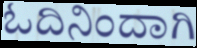
ಓದಿನಿಂದಾಗಿ